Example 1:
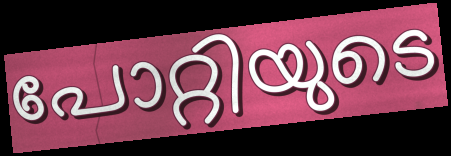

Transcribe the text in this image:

പോറ്റിയുടെ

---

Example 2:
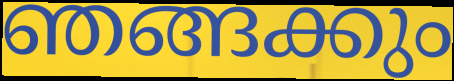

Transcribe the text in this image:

ഞങ്ങക്കും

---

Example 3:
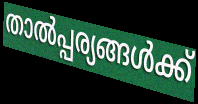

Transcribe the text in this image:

താൽപ്പര്യങ്ങൾക്ക്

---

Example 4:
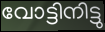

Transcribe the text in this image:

വോട്ടിനിട്ടു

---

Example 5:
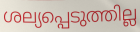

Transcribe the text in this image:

ശല്യപ്പെടുത്തില്ല